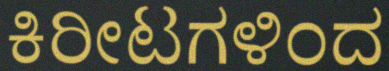
ಕಿರೀಟಗಳಿಂದ